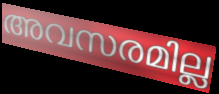
അവസരമില്ല